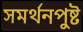
সমর্থনপুষ্ট